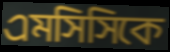
এমসিসিকে